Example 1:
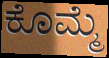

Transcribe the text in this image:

ಕೊಮ್ಮೆ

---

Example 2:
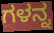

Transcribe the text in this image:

ಗಳನ್ನ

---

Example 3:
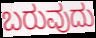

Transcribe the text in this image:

ಬರುವುದು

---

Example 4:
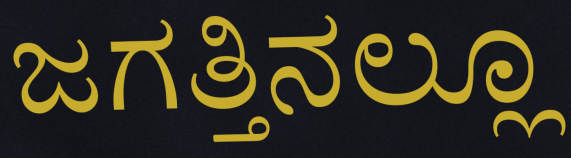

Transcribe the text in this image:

ಜಗತ್ತಿನಲ್ಲೂ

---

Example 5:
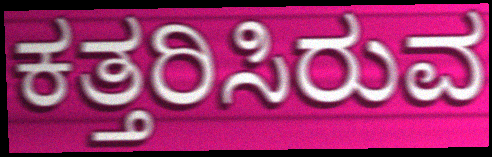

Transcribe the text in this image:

ಕತ್ತರಿಸಿರುವ